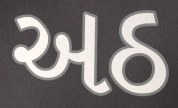
અઠ